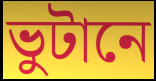
ভুটানে